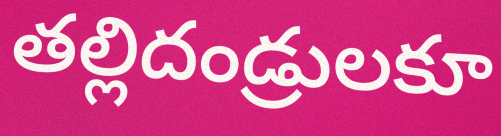
తల్లిదండ్రులకూ